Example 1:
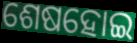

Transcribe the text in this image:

ଶେଷହୋଇ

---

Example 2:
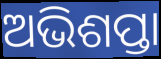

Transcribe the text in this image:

ଅଭିଶପ୍ତା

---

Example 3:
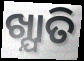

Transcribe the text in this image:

ଖ୍ଯାତି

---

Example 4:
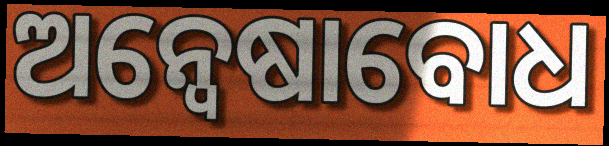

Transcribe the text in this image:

ଅନ୍ୱେଷାବୋଧ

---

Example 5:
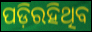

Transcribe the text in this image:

ପଡ଼ିରହିଥିବ